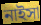
নাইসা